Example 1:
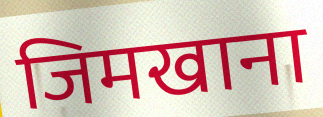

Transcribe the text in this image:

जिमखाना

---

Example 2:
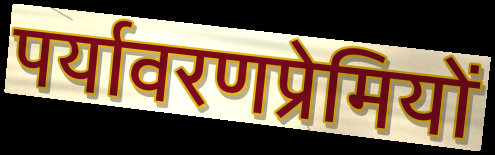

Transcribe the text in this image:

पर्यावरणप्रेमियों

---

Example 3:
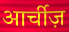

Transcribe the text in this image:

आर्चीज़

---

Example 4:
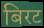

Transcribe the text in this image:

बिरट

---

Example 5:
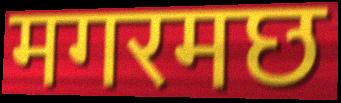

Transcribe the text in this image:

मगरमछ